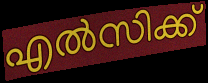
എൽസിക്ക്